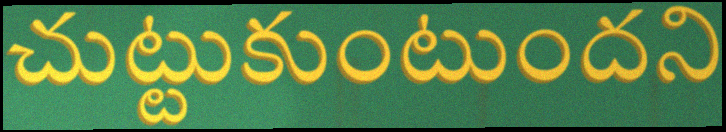
చుట్టుకుంటుందని